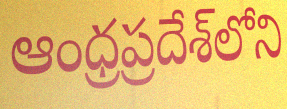
ఆంధ్రప్రదేశ్‌లోని